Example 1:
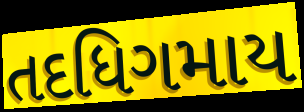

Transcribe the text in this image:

તદધિગમાય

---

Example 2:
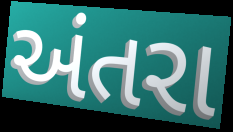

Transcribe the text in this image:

અંતરા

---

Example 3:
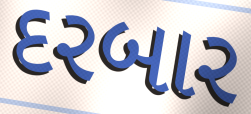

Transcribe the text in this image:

દરબાર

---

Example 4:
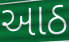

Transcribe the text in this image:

આઠ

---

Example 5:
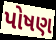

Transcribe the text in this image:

પોષણ